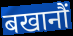
बखानौं